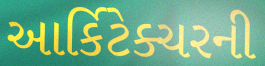
આર્કિટેક્ચરની